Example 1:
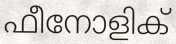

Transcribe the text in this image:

ഫീനോളിക്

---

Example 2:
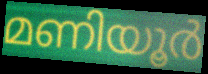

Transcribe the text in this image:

മണിയൂർ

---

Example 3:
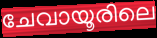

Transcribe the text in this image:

ചേവായൂരിലെ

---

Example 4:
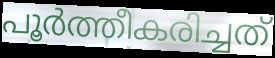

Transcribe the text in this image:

പൂർത്തീകരിച്ചത്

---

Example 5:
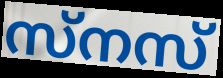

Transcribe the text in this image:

സ്നസ്